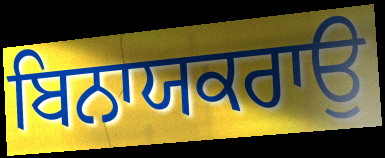
ਬਿਨਾਯਕਰਾਉ